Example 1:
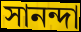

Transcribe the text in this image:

সানন্দা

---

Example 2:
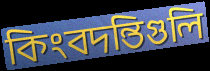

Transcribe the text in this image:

কিংবদন্তিগুলি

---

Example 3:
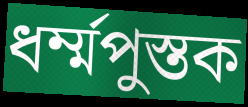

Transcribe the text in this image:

ধর্ম্মপুস্তক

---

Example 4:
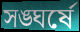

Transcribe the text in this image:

সঙ্ঘর্ষে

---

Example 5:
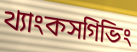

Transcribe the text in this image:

থ্যাংকসগিভিং